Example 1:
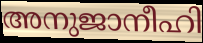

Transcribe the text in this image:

അനുജാനീഹി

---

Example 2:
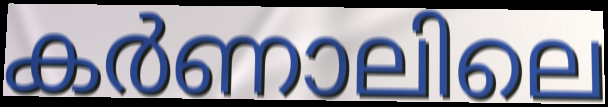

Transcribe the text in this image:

കർണാലിലെ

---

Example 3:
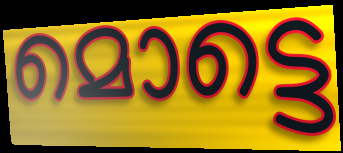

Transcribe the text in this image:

മൊട്ടെ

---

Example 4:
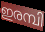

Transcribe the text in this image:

ഇരമ്പി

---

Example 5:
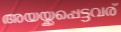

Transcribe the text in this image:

അയയ്ക്കപ്പെട്ടവര്